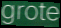
grote